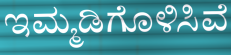
ಇಮ್ಮಡಿಗೊಳಿಸಿವೆ